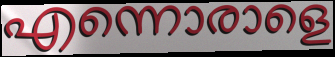
എന്നൊരാളെ